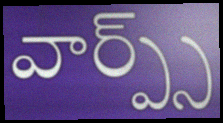
వార్ప్స్